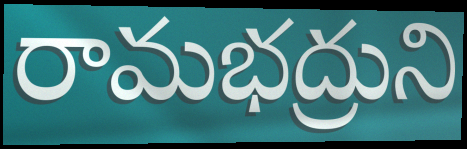
రామభద్రుని